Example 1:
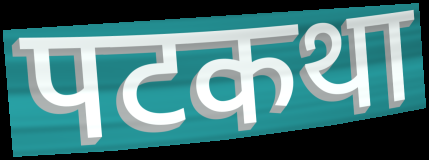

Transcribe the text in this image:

पटकथा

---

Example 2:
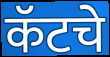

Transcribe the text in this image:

कॅटचे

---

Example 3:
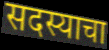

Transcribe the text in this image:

सदस्याचा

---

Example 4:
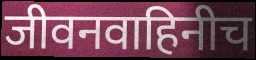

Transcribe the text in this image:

जीवनवाहिनीच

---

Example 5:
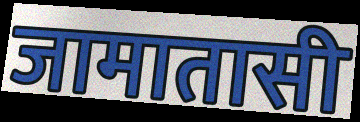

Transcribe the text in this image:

जामातासी